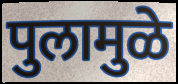
पुलामुळे